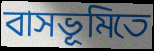
বাসভূমিতে